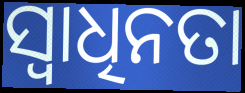
ସ୍ୱାଧିନତା